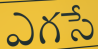
ఎగసే